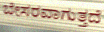
ಬೇಸರವಾಗುತ್ತದೆ